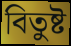
বিতুষ্ট